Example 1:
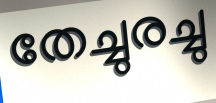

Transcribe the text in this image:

തേച്ചുരച്ചു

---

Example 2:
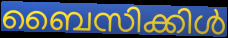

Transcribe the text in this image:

ബൈസിക്കിൾ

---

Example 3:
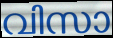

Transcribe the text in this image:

വിസാ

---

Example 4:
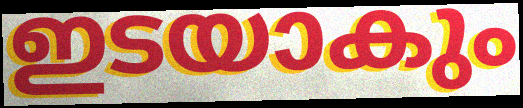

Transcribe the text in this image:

ഇടയാകും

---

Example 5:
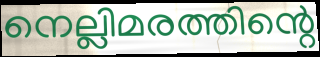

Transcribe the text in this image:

നെല്ലിമരത്തിന്റെ